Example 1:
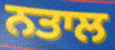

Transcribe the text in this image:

ਨਤਾਲ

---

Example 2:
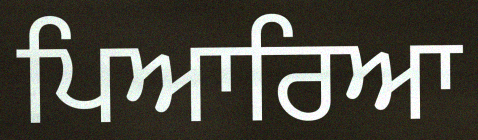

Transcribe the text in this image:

ਪਿਆਰਿਆ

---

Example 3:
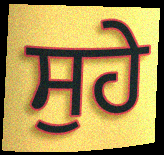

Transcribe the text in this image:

ਸੁਹੇ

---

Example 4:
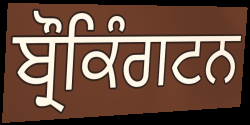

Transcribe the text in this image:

ਬ੍ਰੌਕਿੰਗਟਨ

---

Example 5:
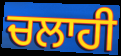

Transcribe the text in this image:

ਚਲਾਹੀ